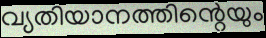
വ്യതിയാനത്തിന്റെയും